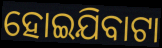
ହୋଇଯିବାଟା